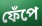
ফেঁপে